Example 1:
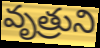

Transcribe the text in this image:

వృత్రుని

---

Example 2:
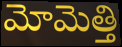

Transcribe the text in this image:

మోమెత్తి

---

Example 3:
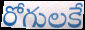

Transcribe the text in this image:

రోగులకే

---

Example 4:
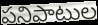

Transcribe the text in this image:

పనిపాటుల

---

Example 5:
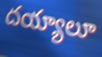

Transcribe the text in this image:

దయ్యాలూ